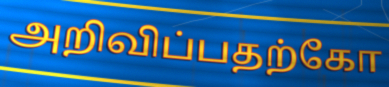
அறிவிப்பதற்கோ